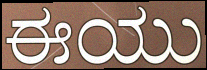
ಈಯು